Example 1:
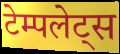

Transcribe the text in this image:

टेम्पलेट्स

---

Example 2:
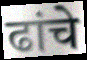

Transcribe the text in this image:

ढांचे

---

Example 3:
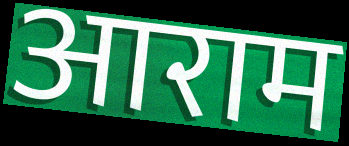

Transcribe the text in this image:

आराम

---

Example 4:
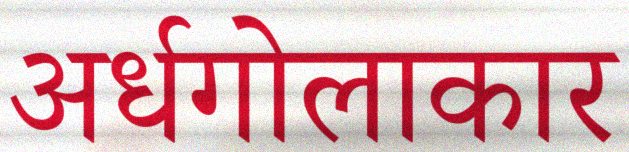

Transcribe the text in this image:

अर्धगोलाकार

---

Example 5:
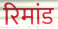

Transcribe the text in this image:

रिमांड